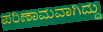
ಪರಿಣಾಮವಾಗಿದ್ದು